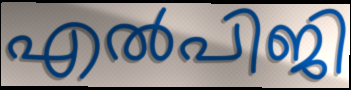
എൽപിജി